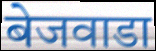
बेजवाडा